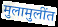
मुलामुलींत